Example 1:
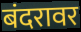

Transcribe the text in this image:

बंदरावर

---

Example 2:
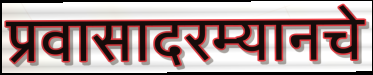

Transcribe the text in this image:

प्रवासादरम्यानचे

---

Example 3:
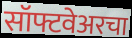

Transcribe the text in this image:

सॉफ्टवेअरचा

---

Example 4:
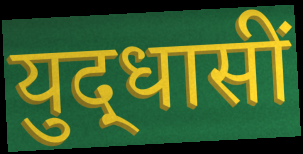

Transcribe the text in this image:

युद्धासीं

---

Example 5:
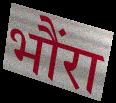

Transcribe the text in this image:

भौंरा